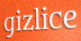
gizlice